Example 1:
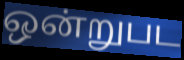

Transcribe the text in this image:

ஒன்றுபட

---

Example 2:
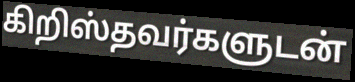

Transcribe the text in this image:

கிறிஸ்தவர்களுடன்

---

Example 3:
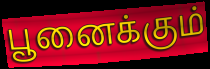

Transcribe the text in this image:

பூனைக்கும்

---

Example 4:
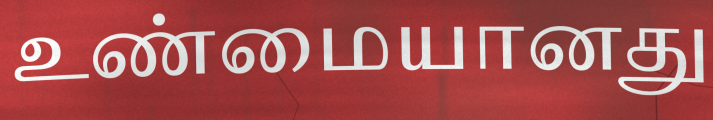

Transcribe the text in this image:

உண்மையானது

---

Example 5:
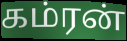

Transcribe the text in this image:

கம்ரன்